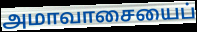
அமாவாசையைப்